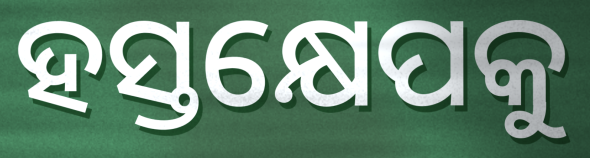
ହସ୍ତକ୍ଷେପକୁ